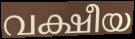
വക്ഷീയ